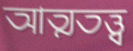
আত্মতত্ত্ব